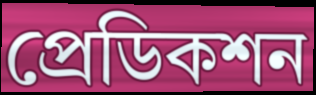
প্রেডিকশন